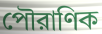
পৌরাণিক